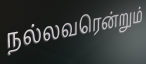
நல்லவரென்றும்